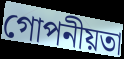
গোপনীয়তা